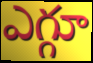
ఎగ్గూ